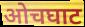
ओचघाट